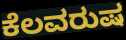
ಕೆಲವರುಷ